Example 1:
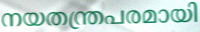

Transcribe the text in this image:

നയതന്ത്രപരമായി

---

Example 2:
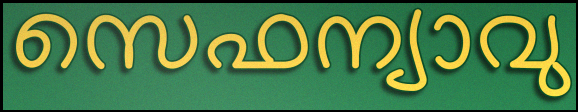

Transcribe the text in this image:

സെഫന്യാവു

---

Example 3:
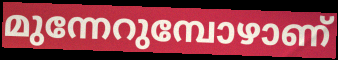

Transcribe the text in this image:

മുന്നേറുമ്പോഴാണ്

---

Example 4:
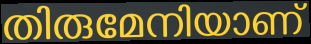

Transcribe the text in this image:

തിരുമേനിയാണ്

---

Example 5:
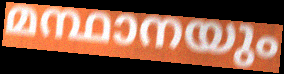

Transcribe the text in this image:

മന്ഥാനയും